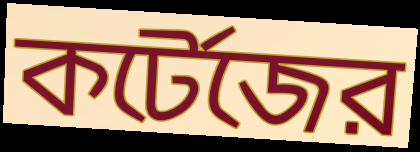
কর্টেজের